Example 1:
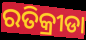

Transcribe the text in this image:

ରତିକ୍ରୀଡା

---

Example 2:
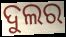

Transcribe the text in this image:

ଦୁଲର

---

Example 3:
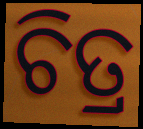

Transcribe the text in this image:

ଚିତ୍ର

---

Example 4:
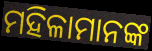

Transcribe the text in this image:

ମହିଳାମାନଙ୍କ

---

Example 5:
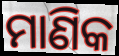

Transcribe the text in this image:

ମାଣିକ